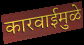
कारवाईमुळे